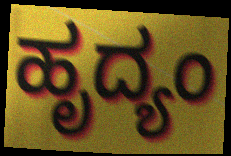
ಹೃದ್ಯಂ